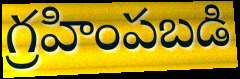
గ్రహింపబడి